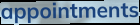
appointments